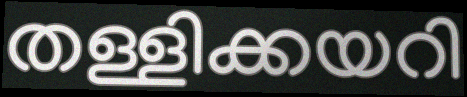
തള്ളിക്കയറി